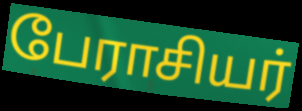
பேராசியர்